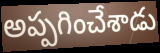
అప్పగించేశాడు